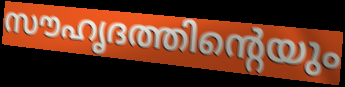
സൗഹൃദത്തിന്റെയും